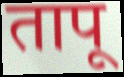
तापू